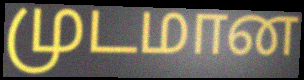
முடமான